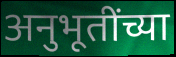
अनुभूतींच्या